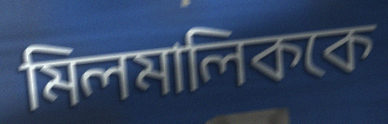
মিলমালিককে